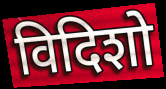
विदिशो